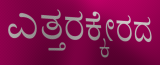
ಎತ್ತರಕ್ಕೇರದ